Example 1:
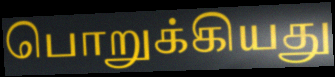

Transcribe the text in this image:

பொறுக்கியது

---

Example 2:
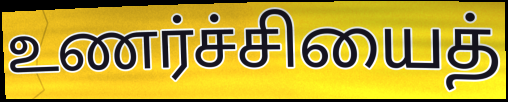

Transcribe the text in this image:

உணர்ச்சியைத்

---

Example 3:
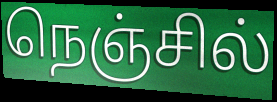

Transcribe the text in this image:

நெஞ்சில்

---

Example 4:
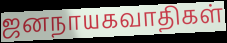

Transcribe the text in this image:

ஜனநாயகவாதிகள்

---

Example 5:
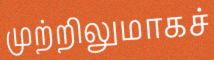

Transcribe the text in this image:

முற்றிலுமாகச்